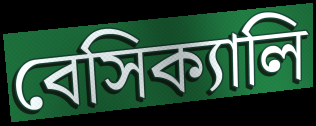
বেসিক্যালি